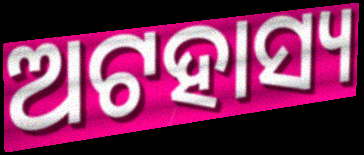
ଅଟହାସ୍ୟ